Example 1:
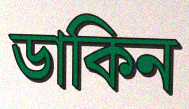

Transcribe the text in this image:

ডাকিন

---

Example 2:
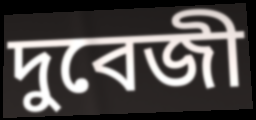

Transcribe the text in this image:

দুবেজী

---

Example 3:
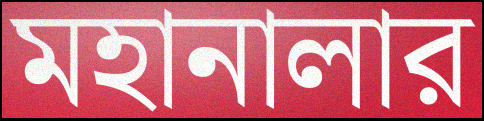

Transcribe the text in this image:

মহানালার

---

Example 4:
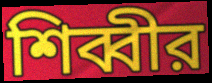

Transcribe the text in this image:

শিব্বীর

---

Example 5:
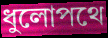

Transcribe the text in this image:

ধুলোপথে